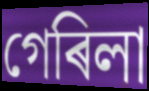
গেৰিলা